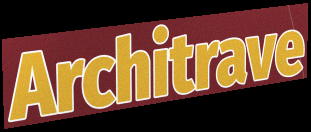
Architrave